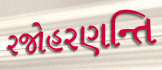
રજોહરણન્તિ